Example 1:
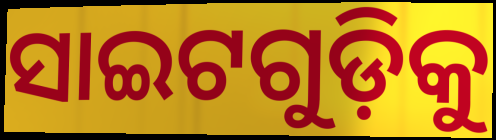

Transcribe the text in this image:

ସାଇଟଗୁଡ଼ିକୁ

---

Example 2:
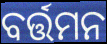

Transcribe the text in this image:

ବର୍ତ୍ତମନ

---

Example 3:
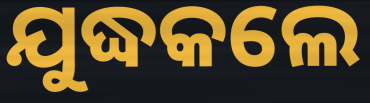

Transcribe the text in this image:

ଯୁଦ୍ଧକଲେ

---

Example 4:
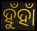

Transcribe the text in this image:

ହୁଁହାଁ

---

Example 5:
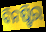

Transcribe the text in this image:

ବିନଷ୍ଟିର